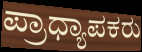
ಪ್ರಾಧ್ಯಾಪಕರು